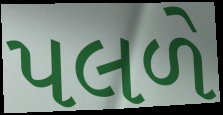
પલળે